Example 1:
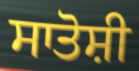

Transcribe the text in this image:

ਸਾਤੋਸ਼ੀ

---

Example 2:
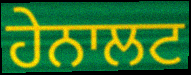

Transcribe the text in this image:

ਹੇਨਾਲਟ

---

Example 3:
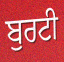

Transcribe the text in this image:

ਬੁਰਟੀ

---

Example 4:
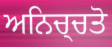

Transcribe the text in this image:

ਅਨਿਚ੍ਚਤੋ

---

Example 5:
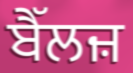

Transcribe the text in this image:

ਬੈੱਲਜ਼